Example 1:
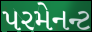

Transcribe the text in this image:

પરમેનન્ટ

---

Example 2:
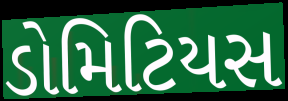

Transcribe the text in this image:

ડોમિટિયસ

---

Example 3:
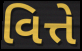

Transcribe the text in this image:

વિત્તે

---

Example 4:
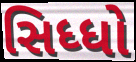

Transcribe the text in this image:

સિધ્ધો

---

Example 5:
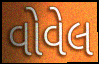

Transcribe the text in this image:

વોવેલ